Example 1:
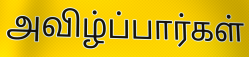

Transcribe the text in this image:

அவிழ்ப்பார்கள்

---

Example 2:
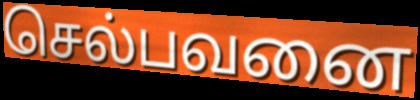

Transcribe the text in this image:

செல்பவனை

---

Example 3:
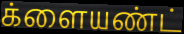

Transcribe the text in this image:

க்ளையண்ட்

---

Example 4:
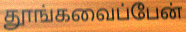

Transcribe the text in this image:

தூங்கவைப்பேன்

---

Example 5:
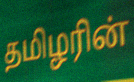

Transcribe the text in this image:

தமிழரின்